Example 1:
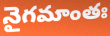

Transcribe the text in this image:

నైగమాంతః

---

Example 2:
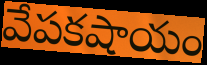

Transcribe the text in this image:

వేపకషాయం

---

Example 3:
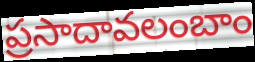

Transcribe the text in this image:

ప్రసాదావలంబాం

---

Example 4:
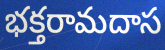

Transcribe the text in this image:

భక్తరామదాస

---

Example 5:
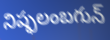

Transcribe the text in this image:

నిష్ఫలంబగున్